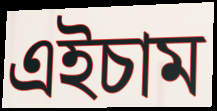
এইচাম